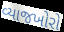
વ્યાજખોરો